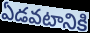
ఏడవటానికి